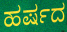
ಹರ್ಷದ